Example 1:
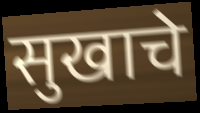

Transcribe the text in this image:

सुखाचे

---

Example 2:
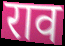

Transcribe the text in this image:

राव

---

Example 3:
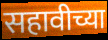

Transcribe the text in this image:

सहावीच्या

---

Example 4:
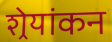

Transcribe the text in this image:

श्रेयांकन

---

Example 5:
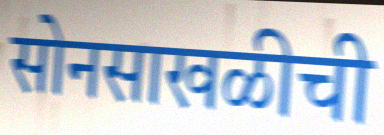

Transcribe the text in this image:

सोनसाखळीची